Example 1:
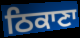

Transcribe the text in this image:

ਠਿਕਾਣਾ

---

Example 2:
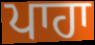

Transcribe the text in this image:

ਪਾਹਾ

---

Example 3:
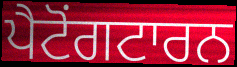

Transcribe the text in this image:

ਪੈਟੋਂਗਟਾਰਨ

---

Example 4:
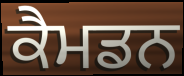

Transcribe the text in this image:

ਕੈਮਡਨ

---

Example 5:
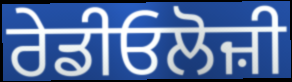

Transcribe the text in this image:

ਰੇਡੀਓਲੋਜ਼ੀ